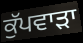
ਕੁੱਪਵਾੜਾ